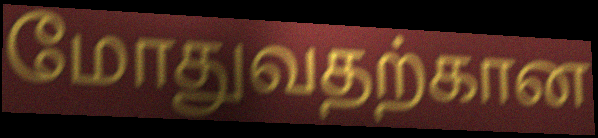
மோதுவதற்கான